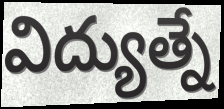
విద్యుత్నే